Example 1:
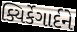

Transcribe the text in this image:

ક્યિર્કેગાર્દને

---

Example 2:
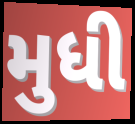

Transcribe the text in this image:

મુધી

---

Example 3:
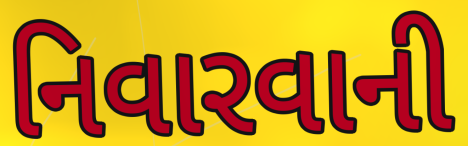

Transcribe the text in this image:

નિવારવાની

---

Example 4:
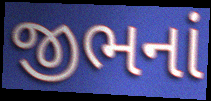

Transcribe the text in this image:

જીભનાં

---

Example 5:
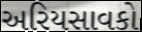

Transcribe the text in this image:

અરિયસાવકો